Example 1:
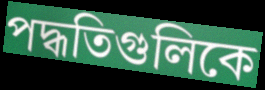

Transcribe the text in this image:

পদ্ধতিগুলিকে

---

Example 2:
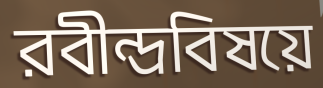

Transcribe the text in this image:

রবীন্দ্রবিষয়ে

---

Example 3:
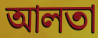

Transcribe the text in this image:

আলতা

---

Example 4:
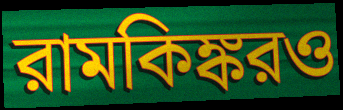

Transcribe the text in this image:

রামকিঙ্করও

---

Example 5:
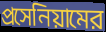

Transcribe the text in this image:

প্রসেনিয়ামের